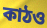
কাঠও